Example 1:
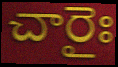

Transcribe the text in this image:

చారైః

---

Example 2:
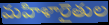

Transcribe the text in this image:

మహిళారైతుల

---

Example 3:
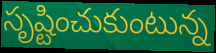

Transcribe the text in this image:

సృష్టించుకుంటున్న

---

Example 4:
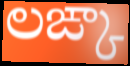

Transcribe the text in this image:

లఙ్కా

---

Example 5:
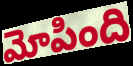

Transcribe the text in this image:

మోపింది